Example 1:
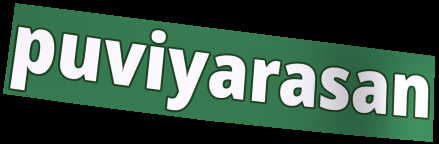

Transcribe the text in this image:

puviyarasan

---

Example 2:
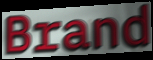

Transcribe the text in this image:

Brand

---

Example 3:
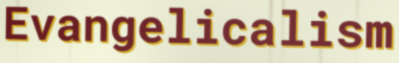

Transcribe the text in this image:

Evangelicalism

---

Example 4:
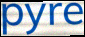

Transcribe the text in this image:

pyre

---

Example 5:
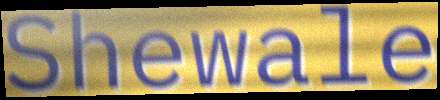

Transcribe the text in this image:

Shewale